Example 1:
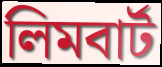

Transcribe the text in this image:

লিমবার্ট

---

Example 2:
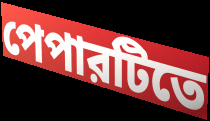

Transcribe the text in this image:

পেপারটিতে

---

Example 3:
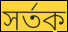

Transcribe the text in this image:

সর্তক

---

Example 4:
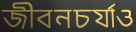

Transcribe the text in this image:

জীবনচর্যাও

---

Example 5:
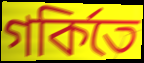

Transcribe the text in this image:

গর্কিতে